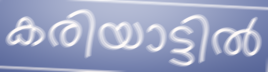
കരിയാട്ടിൽ